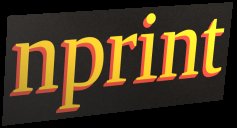
nprint